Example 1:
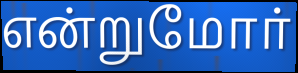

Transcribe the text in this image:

என்றுமோர்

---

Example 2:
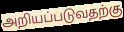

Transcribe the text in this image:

அறியப்படுவதற்கு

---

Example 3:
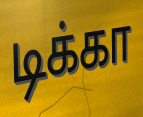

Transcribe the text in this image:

டிக்கா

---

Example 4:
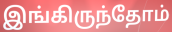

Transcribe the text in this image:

இங்கிருந்தோம்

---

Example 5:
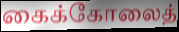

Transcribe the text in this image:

கைக்கோலைத்